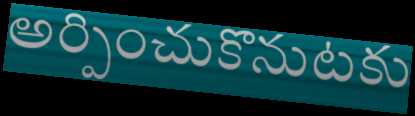
అర్పించుకొనుటకు